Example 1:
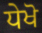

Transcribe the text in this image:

ਧੇਖੋ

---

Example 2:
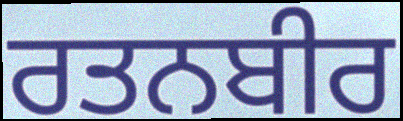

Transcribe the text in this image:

ਰਤਨਬੀਰ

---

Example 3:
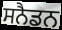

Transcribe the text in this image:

ਸਨੈਡਨ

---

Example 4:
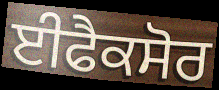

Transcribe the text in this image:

ਈਫੈਕਸੋਰ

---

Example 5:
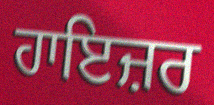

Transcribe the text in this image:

ਹਾਇਜ਼ਰ